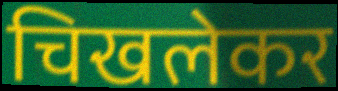
चिखलेकर